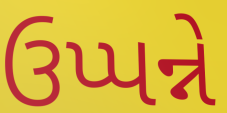
ઉપ્પન્ને